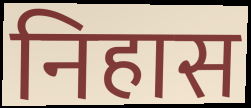
निहास